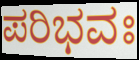
ಪರಿಭವಃ